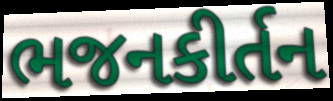
ભજનકીર્તન